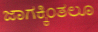
ಜಾಗಕ್ಕಿಂತಲೂ